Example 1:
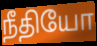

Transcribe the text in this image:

நீதியோ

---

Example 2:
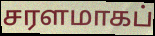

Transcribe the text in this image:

சரளமாகப்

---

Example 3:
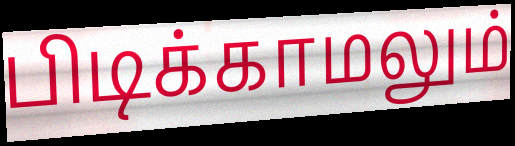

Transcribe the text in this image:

பிடிக்காமலும்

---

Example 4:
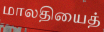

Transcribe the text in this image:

மாலதியைத்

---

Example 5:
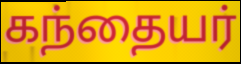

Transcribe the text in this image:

கந்தையர்